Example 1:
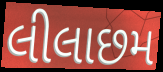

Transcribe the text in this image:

લીલાછમ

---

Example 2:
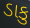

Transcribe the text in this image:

ડાકુ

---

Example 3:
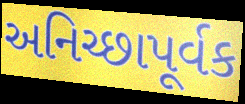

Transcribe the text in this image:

અનિચ્છાપૂર્વક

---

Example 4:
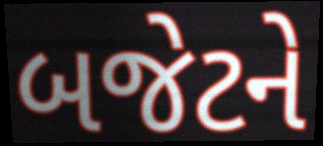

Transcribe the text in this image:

બજેટને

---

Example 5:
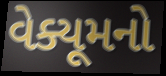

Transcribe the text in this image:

વેક્યૂમનો